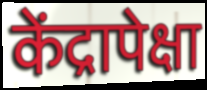
केंद्रापेक्षा